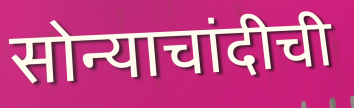
सोन्याचांदीची